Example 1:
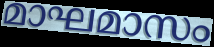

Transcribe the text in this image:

മാഘമാസം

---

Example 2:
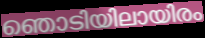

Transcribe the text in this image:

ഞൊടിയിലായിരം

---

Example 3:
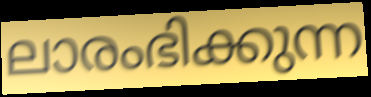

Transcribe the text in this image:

ലാരംഭിക്കുന്ന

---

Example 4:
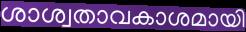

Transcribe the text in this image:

ശാശ്വതാവകാശമായി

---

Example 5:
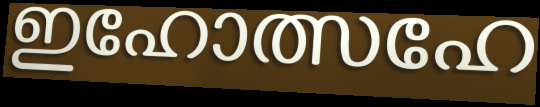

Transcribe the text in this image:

ഇഹോത്സഹേ